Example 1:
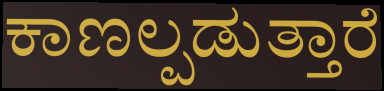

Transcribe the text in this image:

ಕಾಣಲ್ಪಡುತ್ತಾರೆ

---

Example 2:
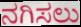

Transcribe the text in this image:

ನಗಿಸಲು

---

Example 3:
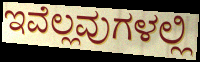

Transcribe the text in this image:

ಇವೆಲ್ಲವುಗಳಲ್ಲಿ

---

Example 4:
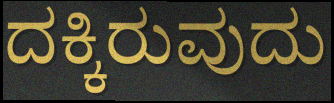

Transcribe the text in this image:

ದಕ್ಕಿರುವುದು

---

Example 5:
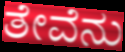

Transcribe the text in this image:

ತೇವೆನು